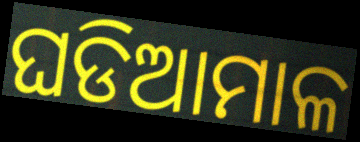
ଘଡିଆମାଳ